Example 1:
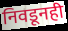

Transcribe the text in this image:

निवडूनही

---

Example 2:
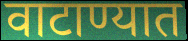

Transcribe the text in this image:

वाटाण्यात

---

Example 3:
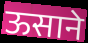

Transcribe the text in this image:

ऊसाने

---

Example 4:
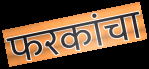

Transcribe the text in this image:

फरकांचा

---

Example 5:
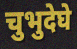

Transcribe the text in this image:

चुभुदेघे